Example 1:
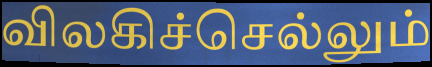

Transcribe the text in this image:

விலகிச்செல்லும்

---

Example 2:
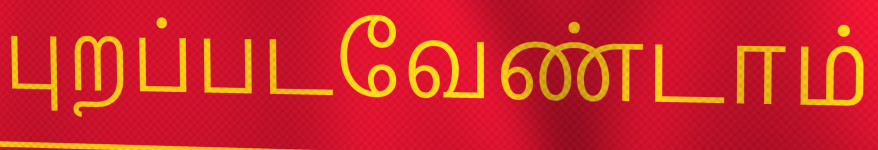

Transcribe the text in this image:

புறப்படவேண்டாம்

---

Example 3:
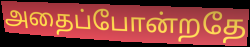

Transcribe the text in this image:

அதைப்போன்றதே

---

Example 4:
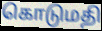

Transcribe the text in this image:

கொடுமதி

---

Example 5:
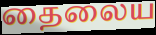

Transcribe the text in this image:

தைலைய